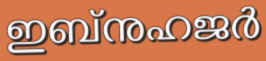
ഇബ്നുഹജർ